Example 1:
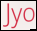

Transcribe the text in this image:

Jyo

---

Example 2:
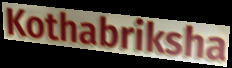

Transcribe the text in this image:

Kothabriksha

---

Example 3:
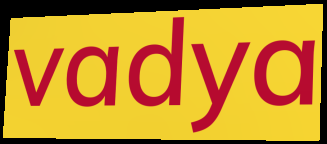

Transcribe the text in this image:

vadya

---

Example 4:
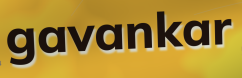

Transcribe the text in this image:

gavankar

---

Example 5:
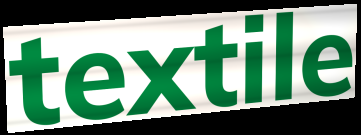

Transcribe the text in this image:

textile